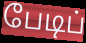
பேடிப்